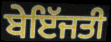
ਬੇਇੱਜਤੀ